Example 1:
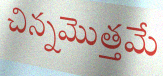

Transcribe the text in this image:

చిన్నమొత్తమే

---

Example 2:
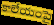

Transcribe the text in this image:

కాలేయంపై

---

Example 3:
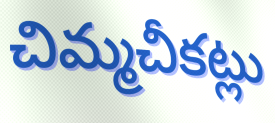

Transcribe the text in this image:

చిమ్మచీకట్లు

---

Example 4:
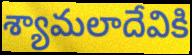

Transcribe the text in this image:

శ్యామలాదేవికి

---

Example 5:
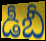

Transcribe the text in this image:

డీబీ